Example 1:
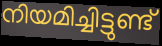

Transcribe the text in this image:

നിയമിച്ചിട്ടുണ്ട്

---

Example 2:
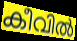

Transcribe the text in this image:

കീവിൽ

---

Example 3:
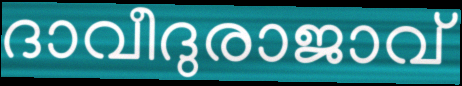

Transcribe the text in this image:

ദാവീദുരാജാവ്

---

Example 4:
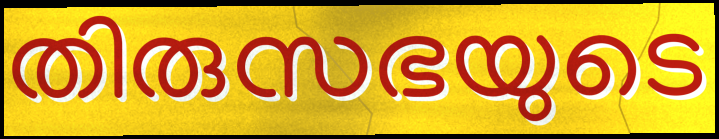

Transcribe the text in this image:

തിരുസഭയുടെ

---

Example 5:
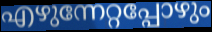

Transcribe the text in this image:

എഴുന്നേറ്റപ്പോഴും